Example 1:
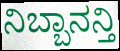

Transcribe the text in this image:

ನಿಬ್ಬಾನನ್ತಿ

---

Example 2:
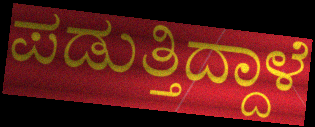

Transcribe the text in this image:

ಪಡುತ್ತಿದ್ದಾಳೆ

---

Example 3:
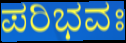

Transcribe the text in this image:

ಪರಿಭವಃ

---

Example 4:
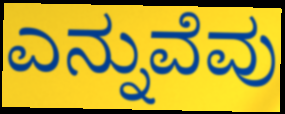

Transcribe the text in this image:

ಎನ್ನುವೆವು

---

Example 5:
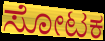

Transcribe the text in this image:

ಸೋಟಕ